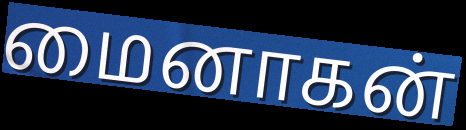
மைனாகன்